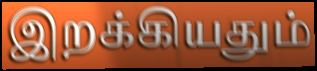
இறக்கியதும்